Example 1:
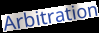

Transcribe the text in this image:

Arbitration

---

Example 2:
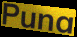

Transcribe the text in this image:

Puna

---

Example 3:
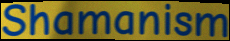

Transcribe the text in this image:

Shamanism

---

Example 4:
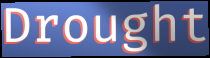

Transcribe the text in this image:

Drought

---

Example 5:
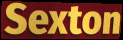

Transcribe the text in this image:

Sexton